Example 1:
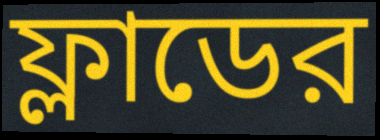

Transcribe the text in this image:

ফ্লাডের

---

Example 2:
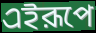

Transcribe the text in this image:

এইরূপে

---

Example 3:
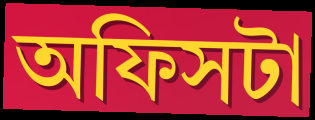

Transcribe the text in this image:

অফিসটা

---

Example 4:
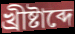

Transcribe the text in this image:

খ্রীষ্টাব্দে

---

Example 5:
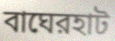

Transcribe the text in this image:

বাঘেরহাট